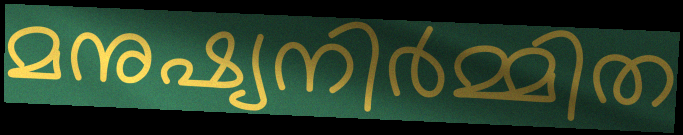
മനുഷ്യനിർമ്മിത